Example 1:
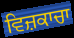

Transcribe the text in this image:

ਵਿਜ਼ਕਾਚਾ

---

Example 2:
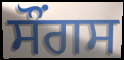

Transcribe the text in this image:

ਸੌਂਗਸ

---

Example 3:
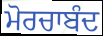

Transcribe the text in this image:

ਮੋਰਚਾਬੰਦ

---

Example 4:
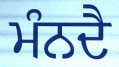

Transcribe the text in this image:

ਮੰਨਦੈ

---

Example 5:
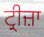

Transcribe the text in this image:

ਟ੍ਰੀਜ਼ਾ